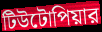
টিউটোপিয়ার